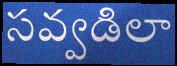
సవ్వడిలా